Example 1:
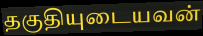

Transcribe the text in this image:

தகுதியுடையவன்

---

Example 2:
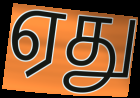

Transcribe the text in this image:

ஏது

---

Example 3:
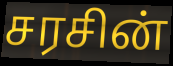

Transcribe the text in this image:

சரசின்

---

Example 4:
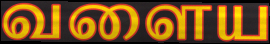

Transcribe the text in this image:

வளைய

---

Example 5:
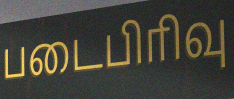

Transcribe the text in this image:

படைபிரிவு